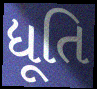
દ્યૂતિ